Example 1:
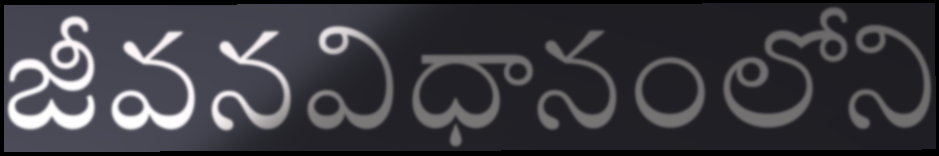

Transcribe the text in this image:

జీవనవిధానంలోని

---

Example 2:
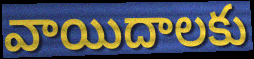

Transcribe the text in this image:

వాయిదాలకు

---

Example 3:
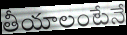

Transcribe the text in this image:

తీయాలంటేనే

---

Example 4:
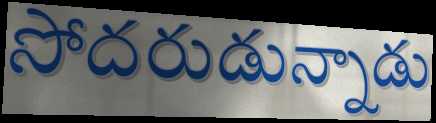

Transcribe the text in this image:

సోదరుడున్నాడు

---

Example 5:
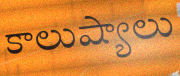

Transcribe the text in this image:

కాలుష్యాలు